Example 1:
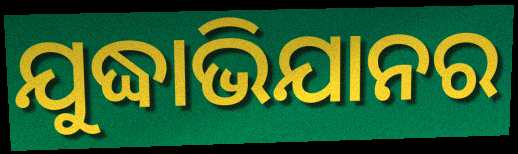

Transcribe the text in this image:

ଯୁଦ୍ଧାଭିଯାନର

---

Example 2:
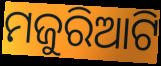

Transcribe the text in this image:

ମଜୁରିଆଟି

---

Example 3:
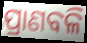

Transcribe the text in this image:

ପ୍ରାଣବଳି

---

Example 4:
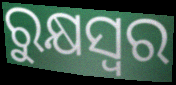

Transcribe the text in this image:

ରୁକ୍ଷସ୍ୱର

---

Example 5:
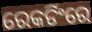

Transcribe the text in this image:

ରେକର୍ଡିଂରେ